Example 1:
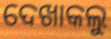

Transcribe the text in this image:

ଦେଖାକଲୁ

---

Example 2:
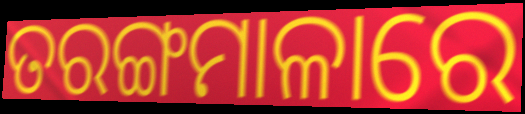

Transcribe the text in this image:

ତରଙ୍ଗମାଳାରେ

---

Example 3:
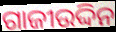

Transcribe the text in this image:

ଗାଜୀଉଦ୍ଦିନ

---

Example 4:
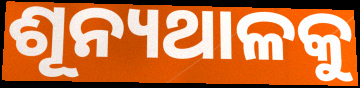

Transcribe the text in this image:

ଶୂନ୍ୟଥାଳକୁ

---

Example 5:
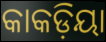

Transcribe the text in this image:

କାକଡ଼ିୟା